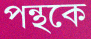
পন্থকে